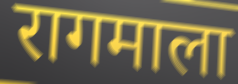
रागमाला